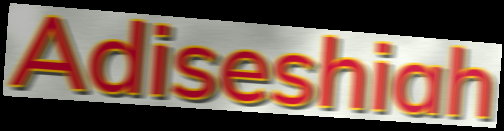
Adiseshiah